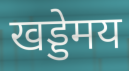
खड्डेमय